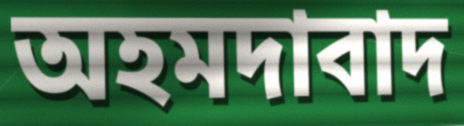
অহমদাবাদ